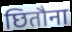
छितौना